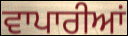
ਵਾਪਾਰੀਆਂ